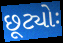
છૂટ્યોઃ